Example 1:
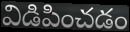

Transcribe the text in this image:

విడిపించడం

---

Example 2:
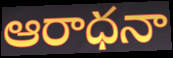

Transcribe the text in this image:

ఆరాధనా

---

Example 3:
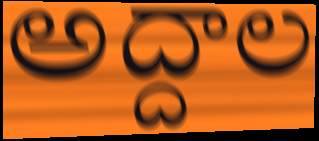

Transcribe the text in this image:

అద్దాల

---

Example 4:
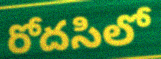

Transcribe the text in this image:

రోదసిలో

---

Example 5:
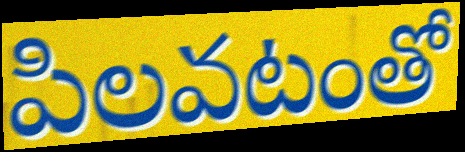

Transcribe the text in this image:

పిలవటంతో